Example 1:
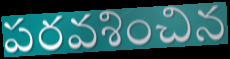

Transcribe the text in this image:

పరవశించిన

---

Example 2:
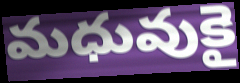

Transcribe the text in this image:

మధువుకై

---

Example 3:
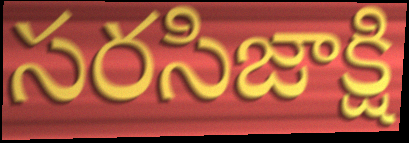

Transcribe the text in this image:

సరసిజాక్షి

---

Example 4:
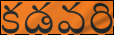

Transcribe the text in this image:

కడవరి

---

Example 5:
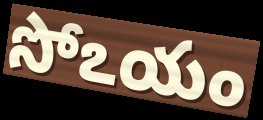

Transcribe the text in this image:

సోఽయం